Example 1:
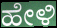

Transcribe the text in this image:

ಹೇಳಿ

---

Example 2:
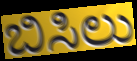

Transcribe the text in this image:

ಬಿಸಿಲು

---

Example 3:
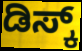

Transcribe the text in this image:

ಡಿಸ್ಕ್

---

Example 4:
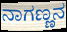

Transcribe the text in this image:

ನಾಗಣ್ಣನ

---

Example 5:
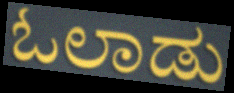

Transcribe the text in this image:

ಓಲಾಡು